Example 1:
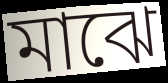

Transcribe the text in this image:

মাঝে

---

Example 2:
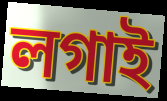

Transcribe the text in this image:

লগাই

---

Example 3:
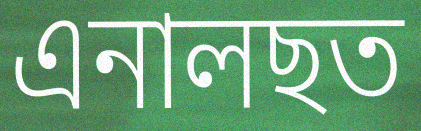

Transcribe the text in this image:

এনালছত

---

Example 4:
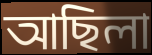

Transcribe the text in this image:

আছিলা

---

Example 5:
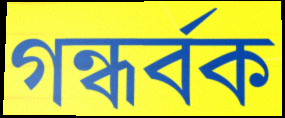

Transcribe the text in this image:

গন্ধৰ্বক